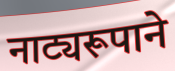
नाट्यरूपाने